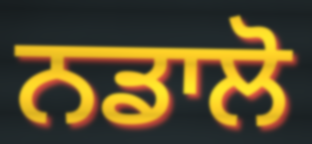
ਨਡਾਲੋ